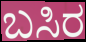
ಬಸಿರ